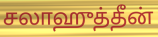
சலாஹுத்தீன்